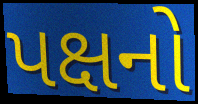
પક્ષનો